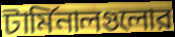
টার্মিনালগুলোর